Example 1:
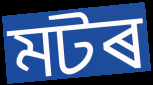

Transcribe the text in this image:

মটৰ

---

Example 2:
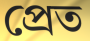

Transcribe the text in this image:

প্ৰেত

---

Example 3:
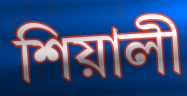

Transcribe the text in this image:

শিয়ালী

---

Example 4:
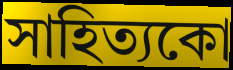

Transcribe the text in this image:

সাহিত্যকো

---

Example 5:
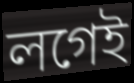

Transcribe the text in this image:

লগেই